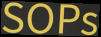
SOPs